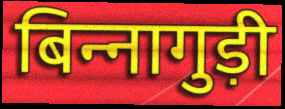
बिन्नागुड़ी